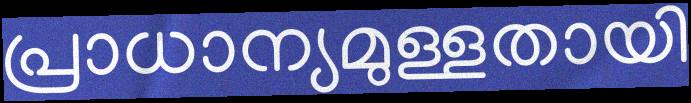
പ്രാധാന്യമുള്ളതായി